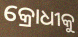
କ୍ରୋଧୀକୁ